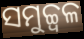
ସମୁଚ୍ଚ୍ୱଳ